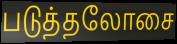
படுத்தலோசை